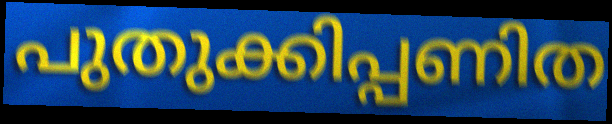
പുതുക്കിപ്പണിത